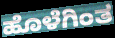
ಹೊಳೆಗಿಂತ